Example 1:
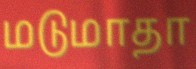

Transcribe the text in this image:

மடுமாதா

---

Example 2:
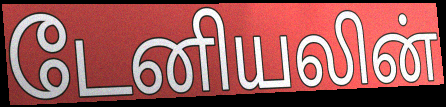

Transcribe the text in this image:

டேனியலின்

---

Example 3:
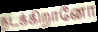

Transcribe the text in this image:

நடக்கிறானோ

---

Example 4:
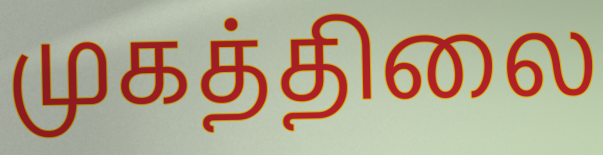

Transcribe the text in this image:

முகத்திலை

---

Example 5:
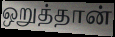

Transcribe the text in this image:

ஒறுத்தான்